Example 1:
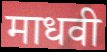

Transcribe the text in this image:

माधवी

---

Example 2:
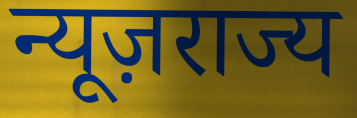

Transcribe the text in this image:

न्यूज़राज्य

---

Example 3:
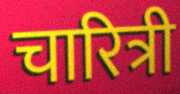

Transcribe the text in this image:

चारित्री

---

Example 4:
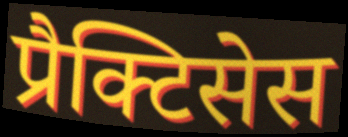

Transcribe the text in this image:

प्रैक्टिसेस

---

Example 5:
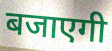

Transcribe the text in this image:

बजाएगी